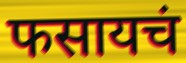
फसायचं